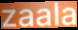
zaala